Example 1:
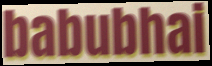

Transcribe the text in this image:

babubhai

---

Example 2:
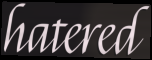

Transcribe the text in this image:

hatered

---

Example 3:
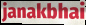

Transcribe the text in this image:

janakbhai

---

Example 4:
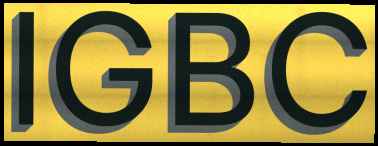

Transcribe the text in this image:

IGBC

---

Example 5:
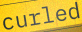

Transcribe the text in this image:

curled